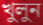
খুলুন